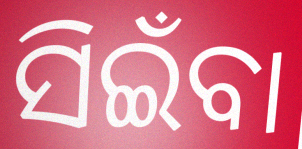
ସିଇଁବା